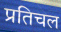
प्रतिचल